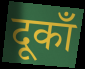
दूकाँ